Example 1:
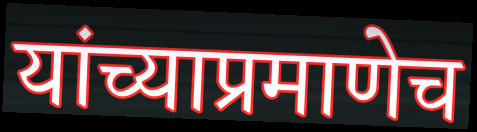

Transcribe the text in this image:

यांच्याप्रमाणेच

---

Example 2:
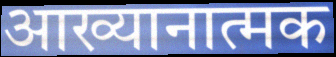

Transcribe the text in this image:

आख्यानात्मक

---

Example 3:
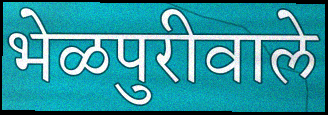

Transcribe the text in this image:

भेळपुरीवाले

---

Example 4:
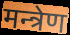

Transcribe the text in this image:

मन्त्रेण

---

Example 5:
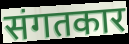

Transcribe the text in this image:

संगतकार